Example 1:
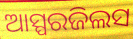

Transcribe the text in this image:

ଆସ୍ପରଜିଲସ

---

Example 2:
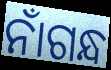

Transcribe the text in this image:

ନାଁଗନ୍ଧ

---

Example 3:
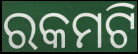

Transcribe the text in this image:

ରକମଟି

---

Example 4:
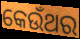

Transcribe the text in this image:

କେଉଁଥର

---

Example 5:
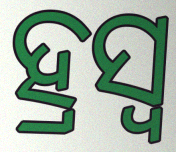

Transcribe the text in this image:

ହ୍ରସ୍ୱ